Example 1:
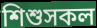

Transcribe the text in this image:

শিশুসকল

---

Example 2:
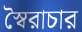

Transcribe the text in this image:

স্বৈরাচার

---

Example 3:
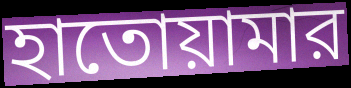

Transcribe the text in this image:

হাতোয়ামার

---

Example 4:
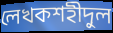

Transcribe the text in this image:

লেখকশহীদুল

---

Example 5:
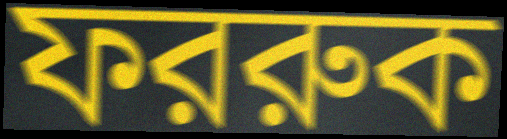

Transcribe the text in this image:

ফররুক